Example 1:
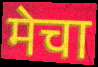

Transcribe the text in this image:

मेचा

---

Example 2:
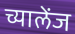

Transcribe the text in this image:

च्यालेंज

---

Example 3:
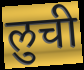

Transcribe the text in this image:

लुची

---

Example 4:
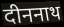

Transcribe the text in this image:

दीननाथ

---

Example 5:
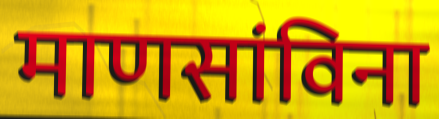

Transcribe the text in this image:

माणसांविना